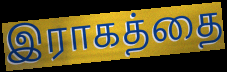
இராகத்தை